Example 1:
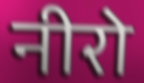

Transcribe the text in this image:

नीरो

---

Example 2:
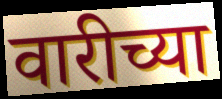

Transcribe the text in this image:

वारीच्या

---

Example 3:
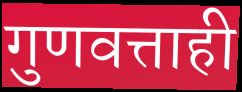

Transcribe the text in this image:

गुणवत्ताही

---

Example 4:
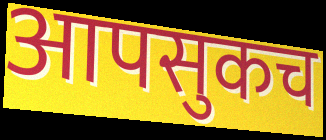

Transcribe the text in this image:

आपसुकच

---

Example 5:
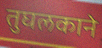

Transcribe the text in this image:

तुघलकाने